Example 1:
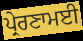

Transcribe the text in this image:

ਪ੍ਰੇਰਣਾਮਈ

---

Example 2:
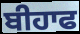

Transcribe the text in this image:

ਬੀਹਾਫ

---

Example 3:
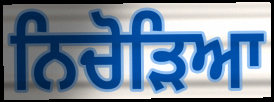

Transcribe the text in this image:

ਨਿਚੋੜਿਆ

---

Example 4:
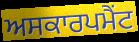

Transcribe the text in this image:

ਅਸਕਾਰਪਮੈਂਟ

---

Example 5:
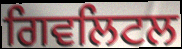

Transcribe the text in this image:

ਗਿਵਲਿਟਲ